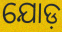
ଯୋଡ଼